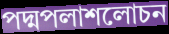
পদ্মপলাশলোচন